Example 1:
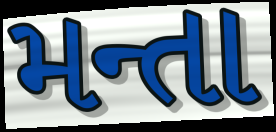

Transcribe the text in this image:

મન્તા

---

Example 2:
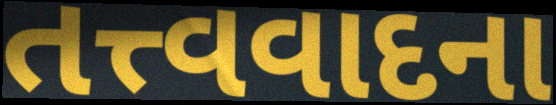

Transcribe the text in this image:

તત્ત્વવાદના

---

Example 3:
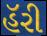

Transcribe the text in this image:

હૅરી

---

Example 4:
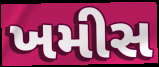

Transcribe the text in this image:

ખમીસ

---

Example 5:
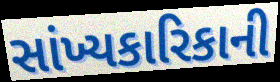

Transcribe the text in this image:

સાંખ્યકારિકાની